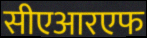
सीएआरएफ